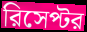
রিসেপ্টর